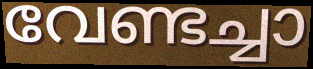
വേണ്ടച്ചാ